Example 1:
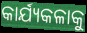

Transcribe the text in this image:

କାର୍ଯ୍ୟକଳାକୁ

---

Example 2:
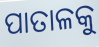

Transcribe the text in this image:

ପାତାଳକୁ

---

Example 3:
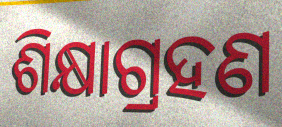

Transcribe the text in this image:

ଶିକ୍ଷାଗ୍ରହଣ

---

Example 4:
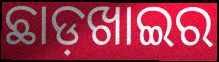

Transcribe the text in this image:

ଛାଡ଼ଖାଇର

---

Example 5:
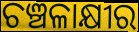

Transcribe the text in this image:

ଚଞ୍ଚଳାକ୍ଷୀର